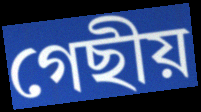
গেছীয়